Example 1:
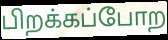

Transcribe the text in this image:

பிறக்கப்போற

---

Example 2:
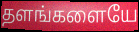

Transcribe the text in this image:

தளங்களையே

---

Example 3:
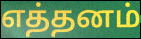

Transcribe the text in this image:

எத்தனம்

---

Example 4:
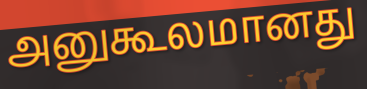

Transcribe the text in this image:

அனுகூலமானது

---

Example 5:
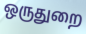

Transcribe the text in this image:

ஒருதுறை